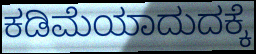
ಕಡಿಮೆಯಾದುದಕ್ಕೆ